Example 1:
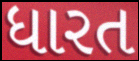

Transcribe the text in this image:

ધારત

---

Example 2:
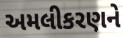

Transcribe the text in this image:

અમલીકરણને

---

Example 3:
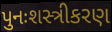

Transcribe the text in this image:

પુનઃશસ્ત્રીકરણ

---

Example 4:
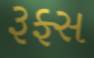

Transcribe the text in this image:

રૂફ્સ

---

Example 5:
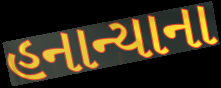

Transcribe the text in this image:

હનાન્યાના